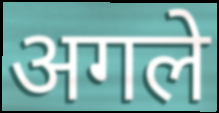
अगले